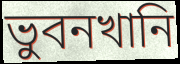
ভুবনখানি